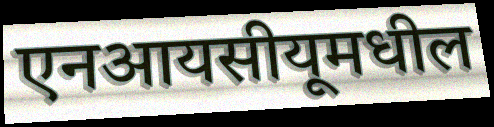
एनआयसीयूमधील